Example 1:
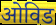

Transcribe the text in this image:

ओविड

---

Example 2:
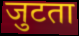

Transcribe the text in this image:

जुटता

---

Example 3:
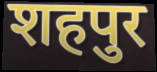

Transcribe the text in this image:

शहपुर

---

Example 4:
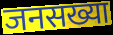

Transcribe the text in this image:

जनसख्या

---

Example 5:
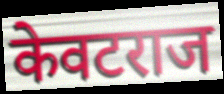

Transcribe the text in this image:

केवटराज